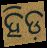
ହିଡ଼